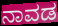
ನಾವಡ